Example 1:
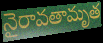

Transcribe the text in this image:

నైరావతామృత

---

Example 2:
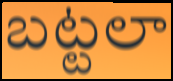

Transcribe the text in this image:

బట్టలా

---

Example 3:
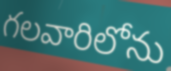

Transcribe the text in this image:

గలవారిలోను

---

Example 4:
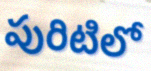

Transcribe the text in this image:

పురిటిలో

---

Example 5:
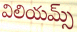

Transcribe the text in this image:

విలియమ్స్